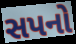
સપનો